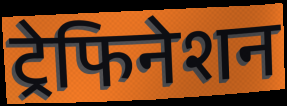
ट्रेफिनेशन